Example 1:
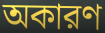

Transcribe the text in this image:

অকারণ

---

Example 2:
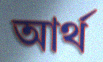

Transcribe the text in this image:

আর্থ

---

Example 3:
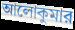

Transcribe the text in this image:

আলোকুমার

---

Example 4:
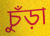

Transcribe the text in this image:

চুঁড়া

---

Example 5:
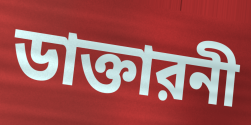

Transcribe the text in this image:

ডাক্তারনী